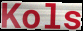
Kols